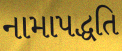
નામાપદ્ધતિ